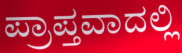
ಪ್ರಾಪ್ತವಾದಲ್ಲಿ